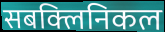
सबक्लिनिकल